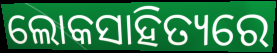
ଲୋକସାହିତ୍ୟରେ